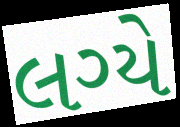
લગ્યે